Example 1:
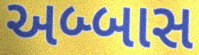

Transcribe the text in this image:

અબ્બાસ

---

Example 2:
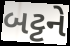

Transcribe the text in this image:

બટ્ટને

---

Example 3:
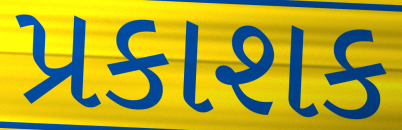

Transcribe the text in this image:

પ્રકાશક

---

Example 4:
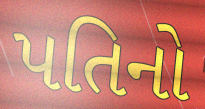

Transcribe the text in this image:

પતિનો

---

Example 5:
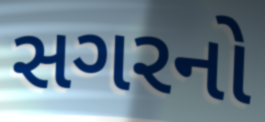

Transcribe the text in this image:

સગરનો